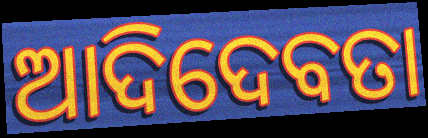
ଆଦିଦେବତା